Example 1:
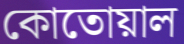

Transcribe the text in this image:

কোতোয়াল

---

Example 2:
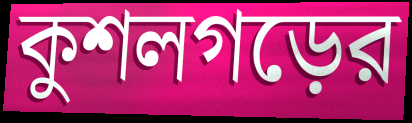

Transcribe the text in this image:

কুশলগড়ের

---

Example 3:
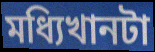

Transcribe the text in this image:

মধ্যিখানটা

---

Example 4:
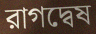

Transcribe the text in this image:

রাগদ্বেষ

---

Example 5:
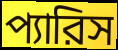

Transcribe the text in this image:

প্যারিস